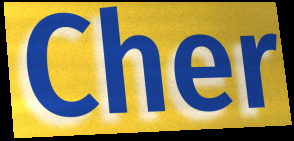
Cher